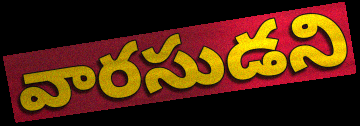
వారసుడని